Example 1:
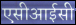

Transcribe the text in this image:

एसीआईसी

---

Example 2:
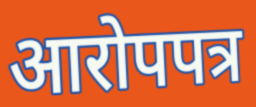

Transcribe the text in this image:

आरोपपत्र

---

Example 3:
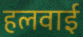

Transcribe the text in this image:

हलवाई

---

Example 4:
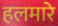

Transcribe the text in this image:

हलमारे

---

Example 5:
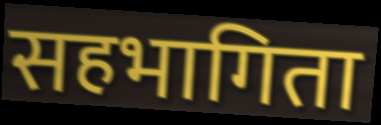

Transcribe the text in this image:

सहभागिता